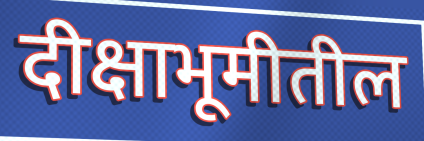
दीक्षाभूमीतील